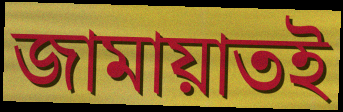
জামায়াতই